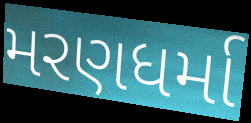
મરણધર્મા